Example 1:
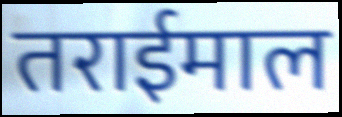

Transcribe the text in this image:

तराईमाल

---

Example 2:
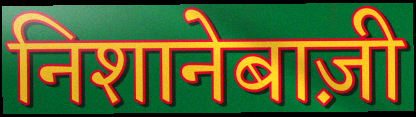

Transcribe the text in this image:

निशानेबाज़ी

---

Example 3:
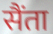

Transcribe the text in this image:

सैंता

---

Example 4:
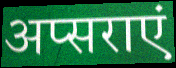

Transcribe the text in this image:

अप्सराएं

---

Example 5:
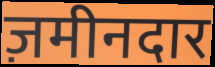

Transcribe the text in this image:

ज़मीनदार